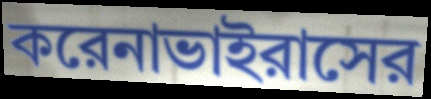
করেনাভাইরাসের